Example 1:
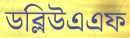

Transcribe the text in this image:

ডব্লিউএএফ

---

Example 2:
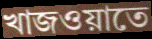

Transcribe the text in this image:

খাজওয়াতে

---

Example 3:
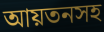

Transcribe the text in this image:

আয়তনসহ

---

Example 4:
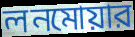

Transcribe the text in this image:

লনমোয়ার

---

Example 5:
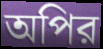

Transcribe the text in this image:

অপির